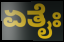
ಏತೈಃ